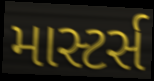
માસ્ટર્સ